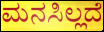
ಮನಸಿಲ್ಲದೆ